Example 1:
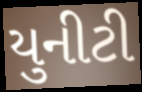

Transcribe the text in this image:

યુનીટી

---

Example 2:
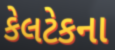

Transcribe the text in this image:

કેલટેકના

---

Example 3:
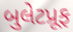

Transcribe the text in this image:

બુલેટપ્રૂફ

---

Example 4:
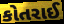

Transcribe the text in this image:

કોતરાઈ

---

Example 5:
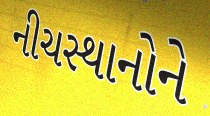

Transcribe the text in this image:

નીચસ્થાનોને